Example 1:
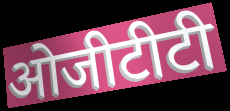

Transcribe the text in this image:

ओजीटीटी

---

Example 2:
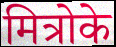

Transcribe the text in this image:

मित्रोके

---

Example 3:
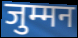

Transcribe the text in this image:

जुम्मन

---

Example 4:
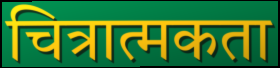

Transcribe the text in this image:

चित्रात्मकता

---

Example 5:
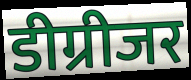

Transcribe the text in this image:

डीग्रीजर